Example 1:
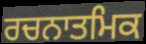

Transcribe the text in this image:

ਰਚਨਾਤਮਿਕ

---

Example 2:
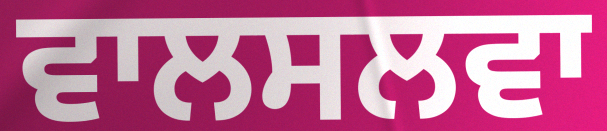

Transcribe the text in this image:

ਵਾਲਸਲਵਾ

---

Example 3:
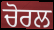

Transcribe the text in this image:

ਚੋਰਲ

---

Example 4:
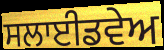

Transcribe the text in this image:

ਸਲਾਈਡਵੇਅ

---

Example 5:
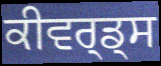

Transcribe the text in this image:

ਕੀਵਰ੍ਡ੍ਸ